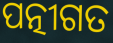
ପତ୍ନୀଗତ